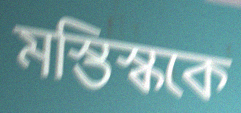
মস্তিস্ককে